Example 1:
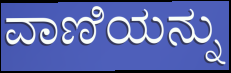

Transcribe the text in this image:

ವಾಣಿಯನ್ನು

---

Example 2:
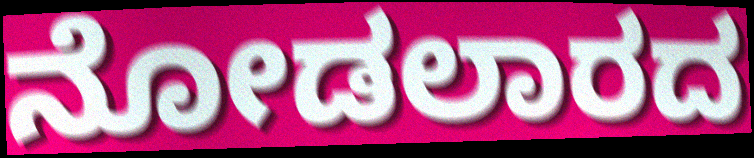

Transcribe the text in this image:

ನೋಡಲಾರದ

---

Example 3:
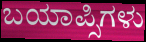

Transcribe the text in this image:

ಬಯಾಪ್ಸಿಗಳು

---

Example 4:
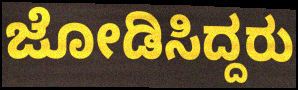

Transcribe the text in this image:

ಜೋಡಿಸಿದ್ದರು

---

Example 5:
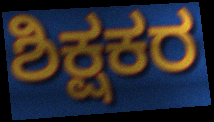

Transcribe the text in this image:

ಶಿಕ್ಷಕರ